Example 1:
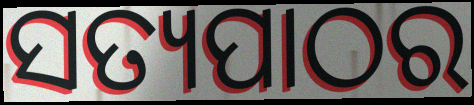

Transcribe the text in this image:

ସତ୍ୟପାଠର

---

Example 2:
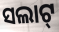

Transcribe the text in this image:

ସଲାଟ୍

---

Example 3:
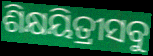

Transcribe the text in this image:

ଶିକ୍ଷୟିତ୍ରୀସବୁ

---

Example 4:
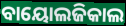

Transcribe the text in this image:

ବାୟୋଲଜିକାଲ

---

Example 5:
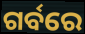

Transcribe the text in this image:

ଗର୍ବରେ